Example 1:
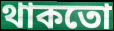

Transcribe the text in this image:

থাকতো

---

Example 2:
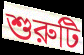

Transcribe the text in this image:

শুরুটি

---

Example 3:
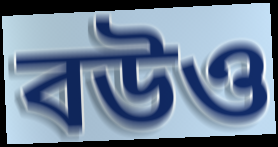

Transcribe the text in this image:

বউও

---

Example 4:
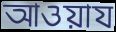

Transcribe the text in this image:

আওয়ায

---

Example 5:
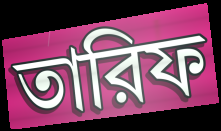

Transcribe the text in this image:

তারিফ